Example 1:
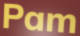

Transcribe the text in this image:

Pam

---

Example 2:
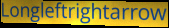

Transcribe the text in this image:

Longleftrightarrow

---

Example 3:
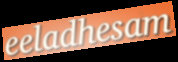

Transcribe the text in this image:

eeladhesam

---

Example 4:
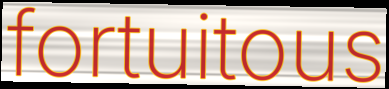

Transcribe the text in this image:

fortuitous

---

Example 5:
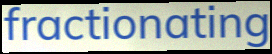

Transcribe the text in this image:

fractionating